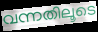
വന്നതിലൂടെ